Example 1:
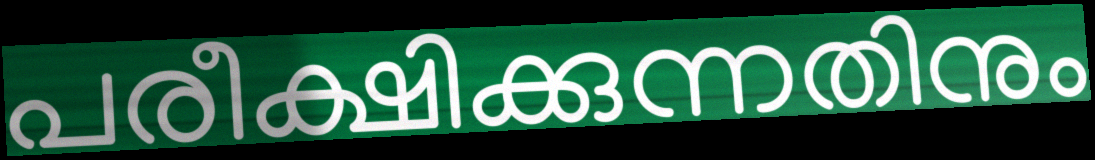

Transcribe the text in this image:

പരീക്ഷിക്കുന്നതിനും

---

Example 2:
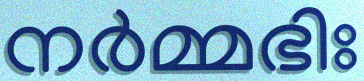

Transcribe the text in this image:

നർമ്മഭിഃ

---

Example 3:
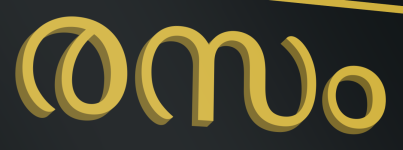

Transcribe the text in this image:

രസം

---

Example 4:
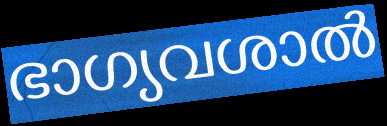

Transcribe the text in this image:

ഭാഗ്യവശാൽ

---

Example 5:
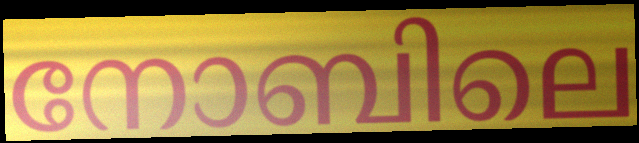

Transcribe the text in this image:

നോബിലെ